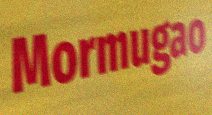
Mormugao